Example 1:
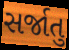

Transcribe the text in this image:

સર્જાતુ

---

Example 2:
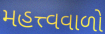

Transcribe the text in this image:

મહત્ત્વવાળો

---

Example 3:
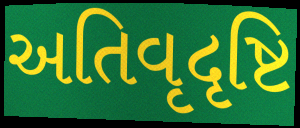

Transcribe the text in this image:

અતિવૃદૃષ્ટિ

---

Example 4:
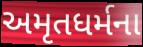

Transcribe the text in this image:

અમૃતધર્મના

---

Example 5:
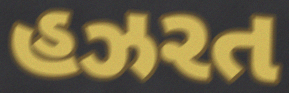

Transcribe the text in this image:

હઝરત